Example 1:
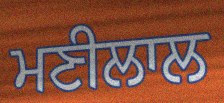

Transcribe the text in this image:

ਮਣੀਲਾਲ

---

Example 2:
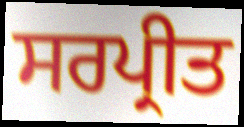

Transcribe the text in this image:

ਸਰਪ੍ਰੀਤ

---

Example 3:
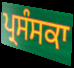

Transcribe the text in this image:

ਪ੍ਰਸੰਸਕਾ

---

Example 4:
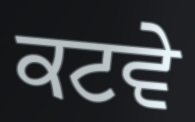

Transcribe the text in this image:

ਕਟਵੇ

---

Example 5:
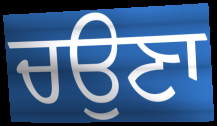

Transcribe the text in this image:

ਚਉਣਾ